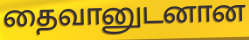
தைவானுடனான